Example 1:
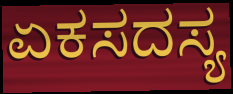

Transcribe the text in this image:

ಏಕಸದಸ್ಯ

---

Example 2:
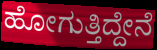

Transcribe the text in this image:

ಹೋಗುತ್ತಿದ್ದೇನೆ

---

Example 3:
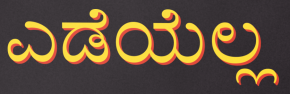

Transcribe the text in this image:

ಎಡೆಯೆಲ್ಲ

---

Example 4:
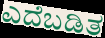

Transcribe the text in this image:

ಎದೆಬಡಿತ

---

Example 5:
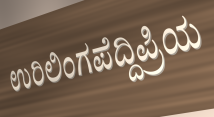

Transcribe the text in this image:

ಉರಿಲಿಂಗಪೆದ್ದಿಪ್ರಿಯ